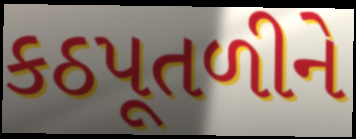
કઠપૂતળીને